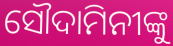
ସୌଦାମିନୀଙ୍କୁ